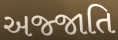
અજ્જાતિ